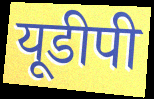
यूडीपी